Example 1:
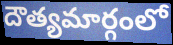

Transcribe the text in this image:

దౌత్యమార్గంలో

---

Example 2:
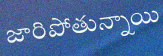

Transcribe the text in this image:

జారిపోతున్నాయి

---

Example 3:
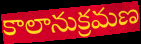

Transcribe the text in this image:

కాలానుక్రమణ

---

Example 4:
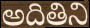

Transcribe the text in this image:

అదితిని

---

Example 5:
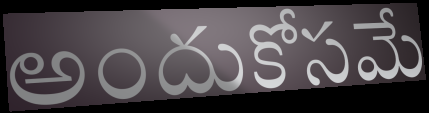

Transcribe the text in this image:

అందుకోసమే